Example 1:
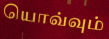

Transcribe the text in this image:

யொவ்வும்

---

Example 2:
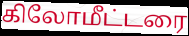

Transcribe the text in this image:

கிலோமீட்டரை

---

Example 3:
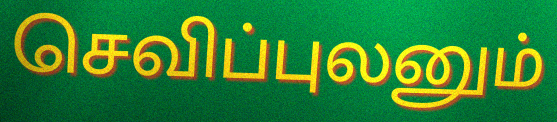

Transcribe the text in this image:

செவிப்புலனும்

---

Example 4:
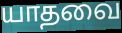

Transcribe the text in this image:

யாதவை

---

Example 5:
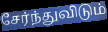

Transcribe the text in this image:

சேர்ந்துவிடும்